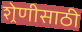
श्रेणीसाठी